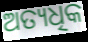
ଅତ୍ୟଧିକ